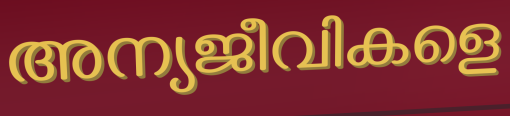
അന്യജീവികളെ